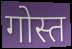
गोस्त